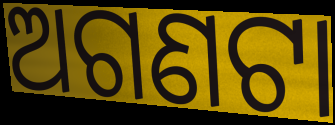
ଅଗଣଟା